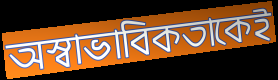
অস্বাভাবিকতাকেই